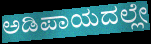
ಅಡಿಪಾಯದಲ್ಲೇ